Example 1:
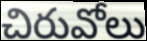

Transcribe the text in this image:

చిరువోలు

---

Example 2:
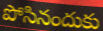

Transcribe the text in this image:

పోసినందుకు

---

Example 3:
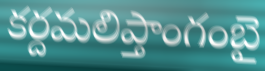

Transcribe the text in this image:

కర్దమలిప్తాంగంబై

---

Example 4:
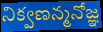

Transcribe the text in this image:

నిక్వణన్మనోజ్ఞ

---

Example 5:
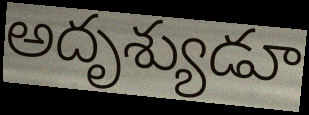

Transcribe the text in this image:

అదృశ్యుడూ